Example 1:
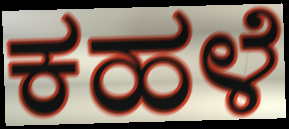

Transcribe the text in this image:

ಕಹಳೆ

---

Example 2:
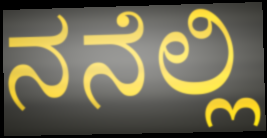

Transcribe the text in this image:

ನನೆಲ್ಲಿ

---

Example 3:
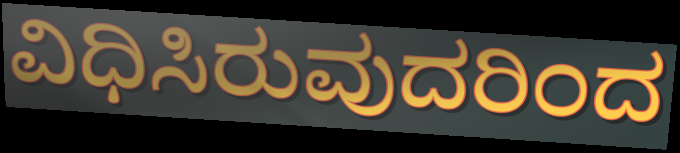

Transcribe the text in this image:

ವಿಧಿಸಿರುವುದರಿಂದ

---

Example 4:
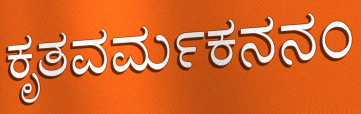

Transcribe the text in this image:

ಕೃತವರ್ಮಕನನಂ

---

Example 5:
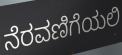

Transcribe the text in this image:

ನೆರವಣಿಗೆಯಲಿ